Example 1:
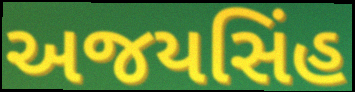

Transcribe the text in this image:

અજયસિંહ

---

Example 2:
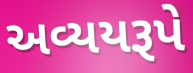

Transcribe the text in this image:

અવ્યયરૂપે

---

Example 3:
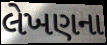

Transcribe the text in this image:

લેખણના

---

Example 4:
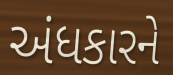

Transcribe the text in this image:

અંધકારને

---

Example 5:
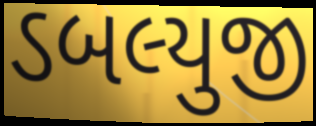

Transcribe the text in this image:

ડબલ્યુજી